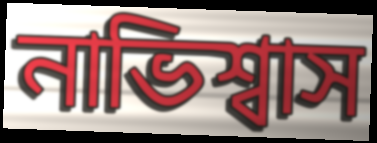
নাভিশ্বাস